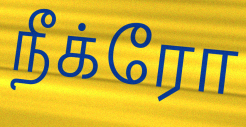
நீக்ரோ